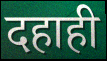
दहाही